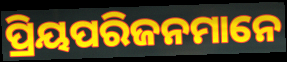
ପ୍ରିୟପରିଜନମାନେ